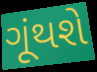
ગૂંથશે